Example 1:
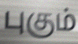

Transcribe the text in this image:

புகும்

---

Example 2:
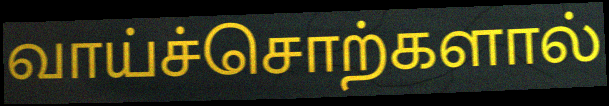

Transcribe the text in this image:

வாய்ச்சொற்களால்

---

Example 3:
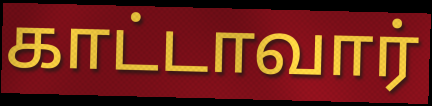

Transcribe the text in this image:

காட்டாவார்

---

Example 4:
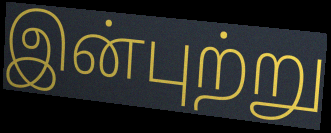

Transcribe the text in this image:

இன்புற்று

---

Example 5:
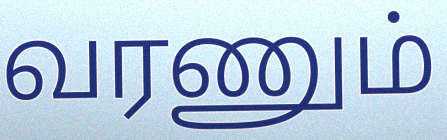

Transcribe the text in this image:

வரணும்